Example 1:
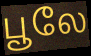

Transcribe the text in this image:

பூலே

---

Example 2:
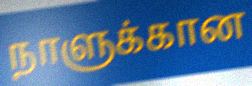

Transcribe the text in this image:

நாளுக்கான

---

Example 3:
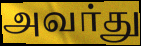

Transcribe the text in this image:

அவர்து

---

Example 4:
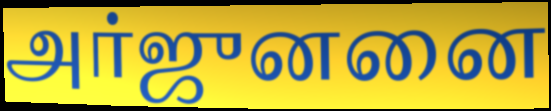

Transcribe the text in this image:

அர்ஜுனனை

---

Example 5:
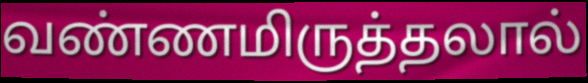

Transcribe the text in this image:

வண்ணமிருத்தலால்